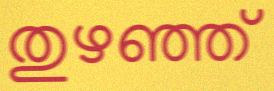
തുഴഞ്ഞ്